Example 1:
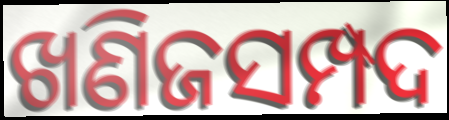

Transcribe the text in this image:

ଖଣିଜସମ୍ପଦ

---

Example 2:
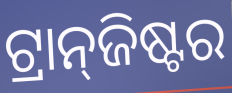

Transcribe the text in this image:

ଟ୍ରାନ୍‍ଜିଷ୍ଟର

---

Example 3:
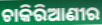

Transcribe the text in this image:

ଚାକିରିଆଣୀର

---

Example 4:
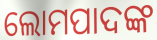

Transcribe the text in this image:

ଲୋମପାଦଙ୍କ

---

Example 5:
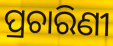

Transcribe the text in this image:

ପ୍ରଚାରିଣୀ